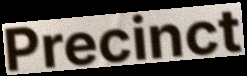
Precinct